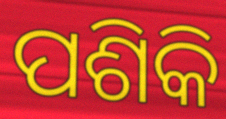
ପଶିକି